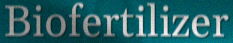
Biofertilizer